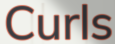
Curls